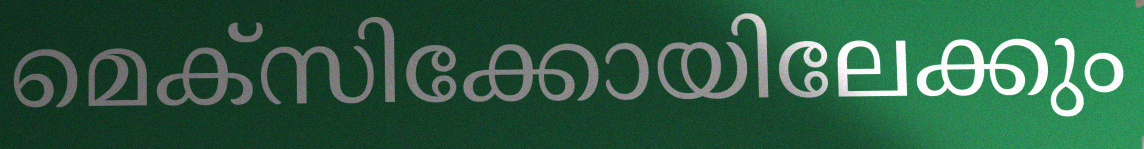
മെക്സിക്കോയിലേക്കും